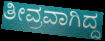
ತೀವ್ರವಾಗಿದ್ದ